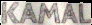
KAMAL